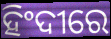
ହିଂଦୀରେ